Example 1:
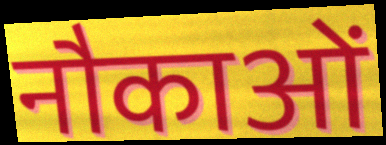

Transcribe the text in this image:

नौकाओं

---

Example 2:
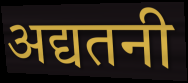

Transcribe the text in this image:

अद्यतनी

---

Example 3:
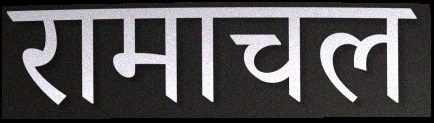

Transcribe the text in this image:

रामाचल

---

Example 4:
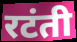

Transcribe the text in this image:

रटंती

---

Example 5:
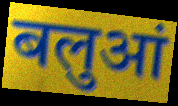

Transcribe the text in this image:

बलुआं